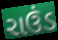
રાઉંડ